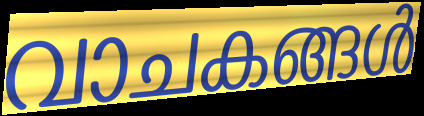
വാചകങ്ങൾ